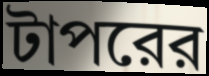
টাপরের